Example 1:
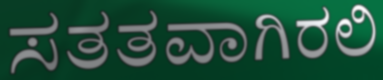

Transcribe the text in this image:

ಸತತವಾಗಿರಲಿ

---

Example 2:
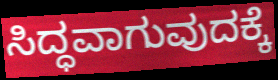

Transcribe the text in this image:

ಸಿದ್ಧವಾಗುವುದಕ್ಕೆ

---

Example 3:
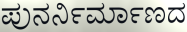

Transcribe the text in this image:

ಪುನರ್ನಿರ್ಮಾಣದ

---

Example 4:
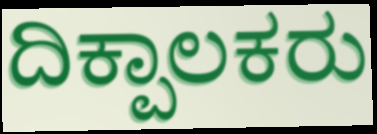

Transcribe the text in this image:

ದಿಕ್ಪಾಲಕರು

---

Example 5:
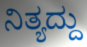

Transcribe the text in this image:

ನಿತ್ಯದ್ದು